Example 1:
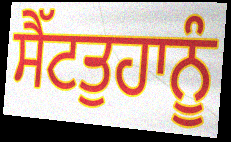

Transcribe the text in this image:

ਸੈੱਟਤੁਹਾਨੂੰ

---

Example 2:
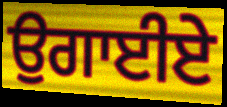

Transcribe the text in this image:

ਉਗਾਈਏ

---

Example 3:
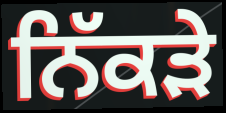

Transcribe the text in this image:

ਨਿੱਕੜੇ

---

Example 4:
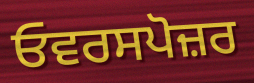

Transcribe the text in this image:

ਓਵਰਸਪੋਜ਼ਰ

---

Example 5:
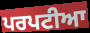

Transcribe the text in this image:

ਪਰਪਟੀਆ